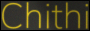
Chithi